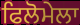
ਫਿਲੋਮੇਲਾ